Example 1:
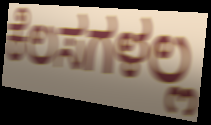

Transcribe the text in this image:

ಕೆಲಸಗಳಲ್ಲ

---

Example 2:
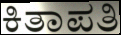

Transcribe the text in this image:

ಕಿತಾಪತಿ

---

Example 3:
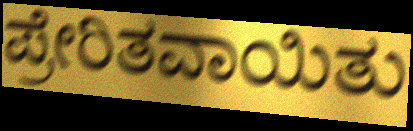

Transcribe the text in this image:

ಪ್ರೇರಿತವಾಯಿತು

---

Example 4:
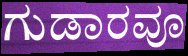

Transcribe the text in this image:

ಗುಡಾರವೂ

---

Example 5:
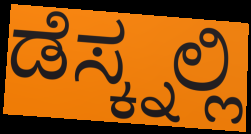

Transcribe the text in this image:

ಡೆಸ್ಕ್ನಲ್ಲಿ